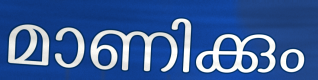
മാണിക്കും